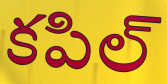
కపిల్